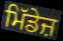
ਮਿੱਡੇਜ਼